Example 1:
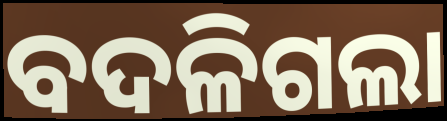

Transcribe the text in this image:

ବଦଳିଗଲା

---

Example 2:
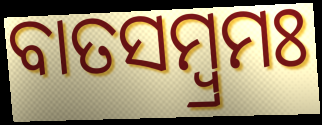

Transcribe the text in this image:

ବାତସମ୍ବ୍ରମଃ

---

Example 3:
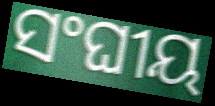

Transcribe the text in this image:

ସଂଘୀୟ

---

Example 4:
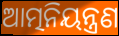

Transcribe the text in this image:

ଆତ୍ମନିୟନ୍ତ୍ରଣ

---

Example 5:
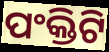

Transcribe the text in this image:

ପଂକ୍ତିଟି